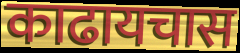
काढायचास